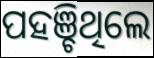
ପହଞ୍ଚିଥିଲେ